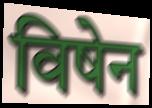
विषेन